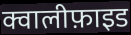
क्वालीफ़ाइड